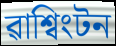
ৱাশ্বিংটন